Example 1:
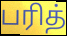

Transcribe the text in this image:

பரித்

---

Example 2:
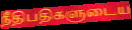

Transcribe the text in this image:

நீதிபதிகளுடைய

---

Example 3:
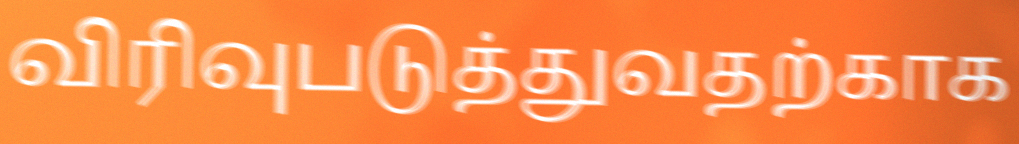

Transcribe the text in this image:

விரிவுபடுத்துவதற்காக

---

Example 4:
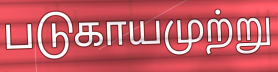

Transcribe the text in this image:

படுகாயமுற்று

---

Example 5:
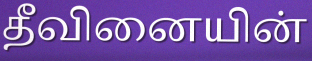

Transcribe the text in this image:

தீவினையின்